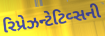
રિપ્રેઝન્ટેટિવ્સની